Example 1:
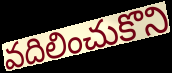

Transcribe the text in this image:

వదిలించుకొని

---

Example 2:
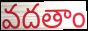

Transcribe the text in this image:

వదతాం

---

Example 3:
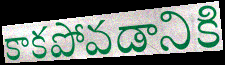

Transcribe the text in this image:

కాకపోవడానికి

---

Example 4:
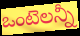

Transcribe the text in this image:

ఒంటెలన్నీ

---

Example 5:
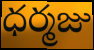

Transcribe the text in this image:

ధర్మజు